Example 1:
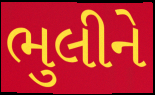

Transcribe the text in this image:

ભુલીને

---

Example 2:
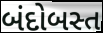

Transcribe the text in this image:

બંદોબસ્ત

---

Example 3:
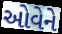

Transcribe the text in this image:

ઓવેને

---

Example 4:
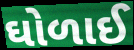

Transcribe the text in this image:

ઘોળાઈ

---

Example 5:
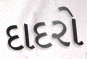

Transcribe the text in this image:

દાદરો